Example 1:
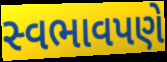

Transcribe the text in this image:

સ્વભાવપણે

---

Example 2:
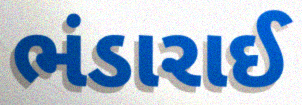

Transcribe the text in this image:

ભંડારાઈ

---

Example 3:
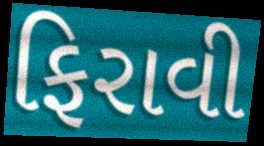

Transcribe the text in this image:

ફિરાવી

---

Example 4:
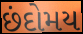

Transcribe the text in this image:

છંદોમય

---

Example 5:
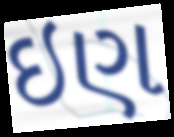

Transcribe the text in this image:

ઇણ